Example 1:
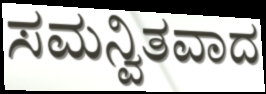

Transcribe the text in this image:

ಸಮನ್ವಿತವಾದ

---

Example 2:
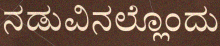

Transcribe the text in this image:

ನಡುವಿನಲ್ಲೊಂದು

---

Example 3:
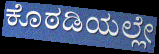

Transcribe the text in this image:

ಕೊಠಡಿಯಲ್ಲೇ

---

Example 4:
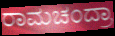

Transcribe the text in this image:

ರಾಮಚಂದ್ರಾ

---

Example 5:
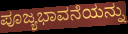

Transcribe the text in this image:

ಪೂಜ್ಯಭಾವನೆಯನ್ನು